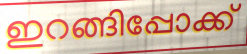
ഇറങ്ങിപ്പോക്ക്